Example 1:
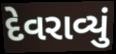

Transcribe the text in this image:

દેવરાવ્યું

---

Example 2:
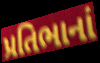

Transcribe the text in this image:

પ્રતિભાનાં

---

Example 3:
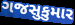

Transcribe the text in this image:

ગજસુકુમાર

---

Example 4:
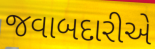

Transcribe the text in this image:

જવાબદારીએ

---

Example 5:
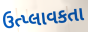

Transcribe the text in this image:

ઉત્પ્લાવકતા